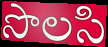
సొలసి